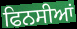
ਫਿਨਸੀਆਂ